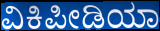
ವಿಕಿಪೀಡಿಯಾ